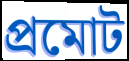
প্রমোট